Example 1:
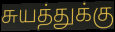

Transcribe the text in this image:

சுயத்துக்கு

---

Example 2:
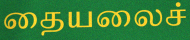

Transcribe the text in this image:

தையலைச்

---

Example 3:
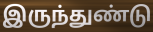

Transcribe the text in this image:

இருந்துண்டு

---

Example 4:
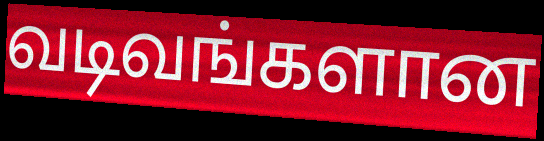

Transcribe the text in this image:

வடிவங்களான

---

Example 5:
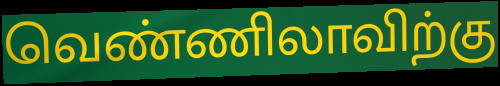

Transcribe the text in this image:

வெண்ணிலாவிற்கு